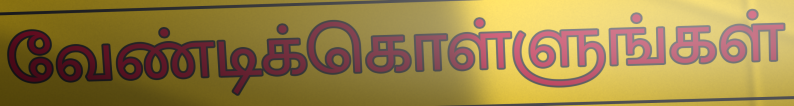
வேண்டிக்கொள்ளுங்கள்